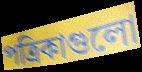
পত্রিকাগুলো